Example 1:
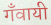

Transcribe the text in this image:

गँवायी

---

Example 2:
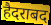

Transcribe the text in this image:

हैदराबद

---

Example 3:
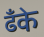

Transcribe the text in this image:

ढँके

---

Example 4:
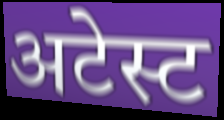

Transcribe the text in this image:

अटेस्ट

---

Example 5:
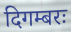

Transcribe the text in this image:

दिगम्बरः